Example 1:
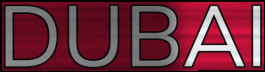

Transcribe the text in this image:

DUBAI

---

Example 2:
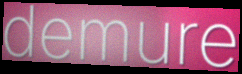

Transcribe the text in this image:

demure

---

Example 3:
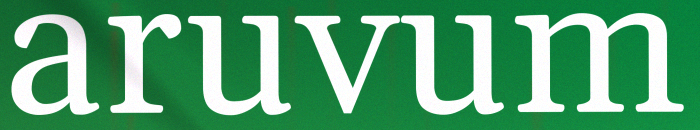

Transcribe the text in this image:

aruvum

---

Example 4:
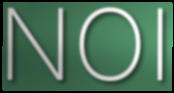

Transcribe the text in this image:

NOI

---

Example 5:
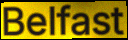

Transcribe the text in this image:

Belfast